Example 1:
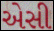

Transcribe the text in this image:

એસી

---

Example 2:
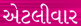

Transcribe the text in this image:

એટલીવાર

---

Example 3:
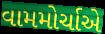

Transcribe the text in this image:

વામમોર્ચાએ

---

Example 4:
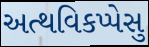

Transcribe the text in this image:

અત્થવિકપ્પેસુ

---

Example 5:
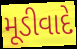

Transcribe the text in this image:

મૂડીવાદે